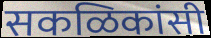
सकळिकांसी